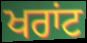
ਖਰਾਂਟ